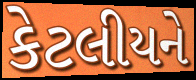
કેટલીયને